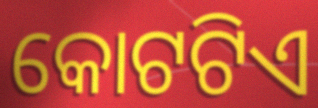
କୋଟଟିଏ